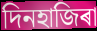
দিনহাজিৰা